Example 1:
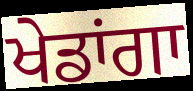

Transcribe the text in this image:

ਖੇਡਾਂਗਾ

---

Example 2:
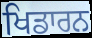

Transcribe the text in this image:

ਖਿਡਾਰਨ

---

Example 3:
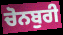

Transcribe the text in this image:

ਚੋਨਬੁਰੀ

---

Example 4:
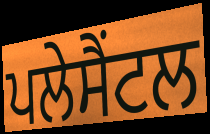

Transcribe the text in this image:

ਪਲੇਸੈਂਟਲ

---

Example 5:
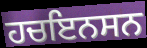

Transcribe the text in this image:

ਹਚਇਨਸਨ